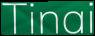
Tinai